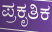
ಪ್ರಕೃತಿಕ